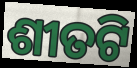
ଶୀତଟି